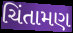
ચિંતામણ